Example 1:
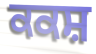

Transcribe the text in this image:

ਕਕਸ਼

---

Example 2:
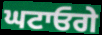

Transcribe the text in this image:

ਘਟਾਓਗੇ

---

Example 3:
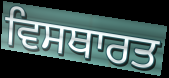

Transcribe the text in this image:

ਵਿਸਥਾਰਤ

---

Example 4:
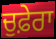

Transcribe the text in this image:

ਚੁਫ਼ੇਰਾ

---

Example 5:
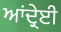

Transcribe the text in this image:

ਆਂਦ੍ਰੇਈ